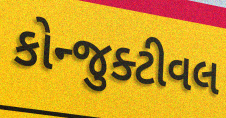
કોન્જુક્ટીવલ